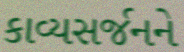
કાવ્યસર્જનને